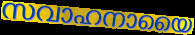
സവാഹനായൈ